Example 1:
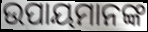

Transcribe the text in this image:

ଉପାୟମାନଙ୍କ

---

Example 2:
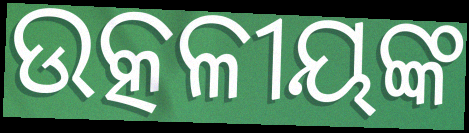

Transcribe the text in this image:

ଉତ୍କଳୀୟଙ୍କ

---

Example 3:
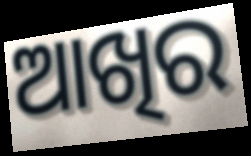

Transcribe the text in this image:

ଆଖିର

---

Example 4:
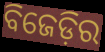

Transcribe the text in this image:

ବିଜେଡ଼ିର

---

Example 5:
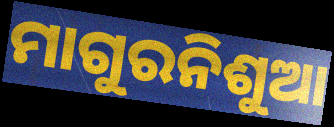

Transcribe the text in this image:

ମାଗୁରନିଶୁଆ